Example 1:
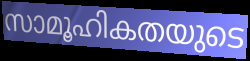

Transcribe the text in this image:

സാമൂഹികതയുടെ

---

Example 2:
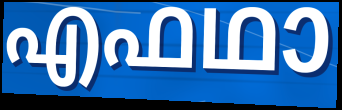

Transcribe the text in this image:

എഫഥാ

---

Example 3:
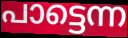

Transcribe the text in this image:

പാട്ടെന്ന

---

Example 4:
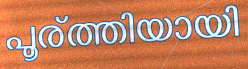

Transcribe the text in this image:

പൂര്ത്തിയായി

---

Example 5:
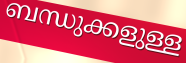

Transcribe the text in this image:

ബന്ധുക്കളുള്ള